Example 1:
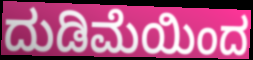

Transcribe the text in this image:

ದುಡಿಮೆಯಿಂದ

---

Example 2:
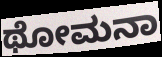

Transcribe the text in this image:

ಥೋಮನಾ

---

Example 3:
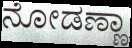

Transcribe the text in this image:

ನೋಡಣ್ಣಾ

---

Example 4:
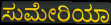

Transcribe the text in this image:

ಸುಮೇರಿಯಾ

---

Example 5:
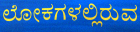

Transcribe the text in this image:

ಲೋಕಗಳಲ್ಲಿರುವ